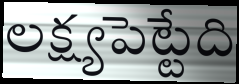
లక్ష్యపెట్టేది